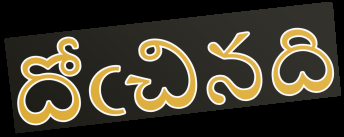
దోఁచినది